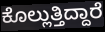
ಕೊಲ್ಲುತ್ತಿದ್ದಾರೆ